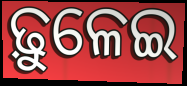
ଢ଼ୁଳେଇ